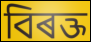
বিৰক্ত